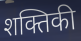
शक्तिकी